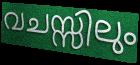
വചസ്സിലും